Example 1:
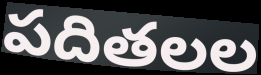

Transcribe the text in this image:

పదితలల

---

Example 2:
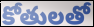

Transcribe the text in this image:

కోతులతో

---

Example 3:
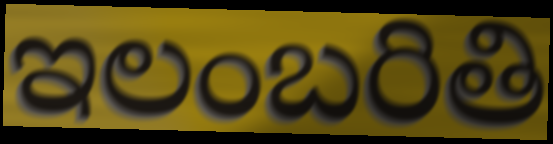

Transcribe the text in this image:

ఇలంబరితి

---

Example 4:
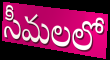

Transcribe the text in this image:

సీమలలో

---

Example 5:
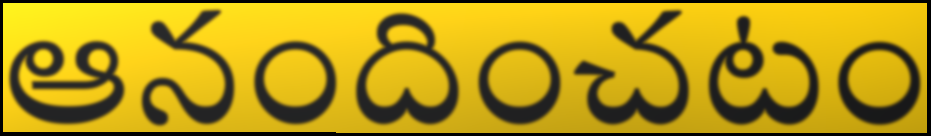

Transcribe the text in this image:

ఆనందించటం